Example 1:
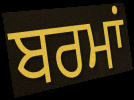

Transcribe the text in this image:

ਬਰਮਾਂ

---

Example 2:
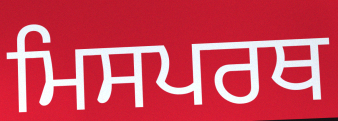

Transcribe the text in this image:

ਮਿਸਪਰਥ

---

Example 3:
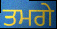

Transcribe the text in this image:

ਤਮਗੇ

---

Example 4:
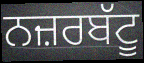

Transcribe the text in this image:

ਨਜ਼ਰਬੱਟੂ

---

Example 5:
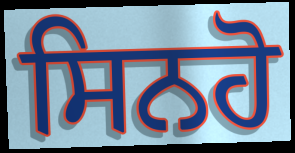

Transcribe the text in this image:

ਸਿਨਹੋ